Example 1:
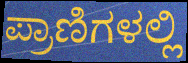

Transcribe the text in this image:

ಪ್ರಾಣಿಗಳಲ್ಲಿ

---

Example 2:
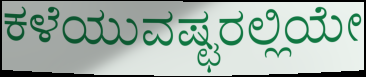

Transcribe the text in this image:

ಕಳೆಯುವಷ್ಟರಲ್ಲಿಯೇ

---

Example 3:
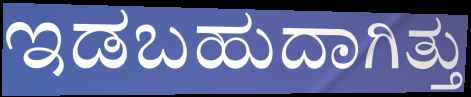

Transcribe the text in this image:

ಇಡಬಹುದಾಗಿತ್ತು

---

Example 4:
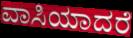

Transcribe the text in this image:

ವಾಸಿಯಾದರೆ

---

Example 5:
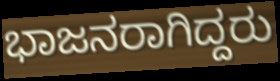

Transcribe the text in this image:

ಭಾಜನರಾಗಿದ್ದರು